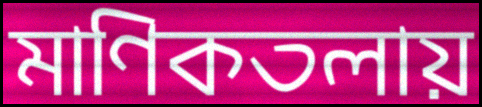
মাণিকতলায়